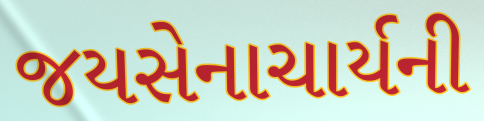
જયસેનાચાર્યની